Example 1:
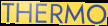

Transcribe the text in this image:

THERMO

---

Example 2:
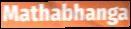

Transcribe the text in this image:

Mathabhanga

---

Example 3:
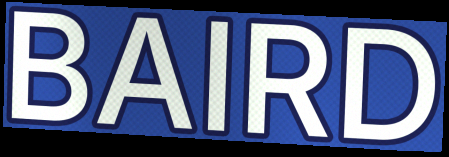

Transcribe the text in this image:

BAIRD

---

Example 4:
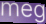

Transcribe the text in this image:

meg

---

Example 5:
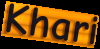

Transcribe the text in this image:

Khari